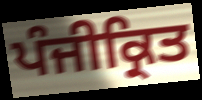
ਪੰਜੀਕ੍ਰਿਤ